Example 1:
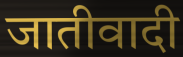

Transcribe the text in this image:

जातीवादी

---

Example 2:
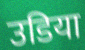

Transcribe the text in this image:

उडिया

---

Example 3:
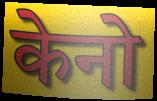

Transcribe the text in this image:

केनो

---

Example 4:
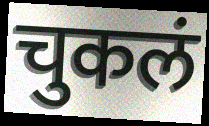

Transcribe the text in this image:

चुकलं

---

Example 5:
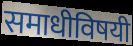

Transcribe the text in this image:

समाधीविषयी